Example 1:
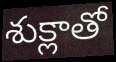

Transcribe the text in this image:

శుక్లాతో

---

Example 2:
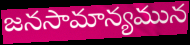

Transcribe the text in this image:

జనసామాన్యమున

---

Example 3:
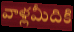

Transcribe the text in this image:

వాళ్లమీదికి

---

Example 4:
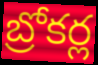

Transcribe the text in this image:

బ్రోకర్ల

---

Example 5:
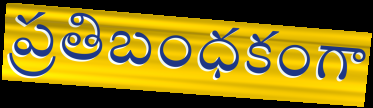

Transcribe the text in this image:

ప్రతిబంధకంగా